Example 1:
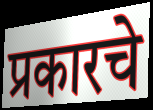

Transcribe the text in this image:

प्रकारचे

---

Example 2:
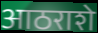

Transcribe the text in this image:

आठराशे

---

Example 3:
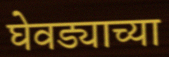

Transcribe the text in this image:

घेवड्याच्या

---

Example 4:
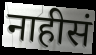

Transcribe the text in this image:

नाहीसं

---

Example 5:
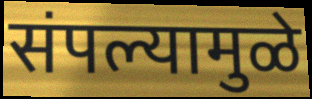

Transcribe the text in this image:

संपल्यामुळे